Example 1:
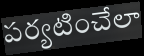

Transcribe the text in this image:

పర్యటించేలా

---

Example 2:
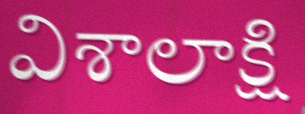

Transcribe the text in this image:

విశాలాక్షి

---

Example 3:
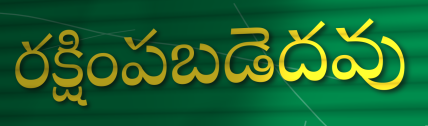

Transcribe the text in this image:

రక్షింపబడెదవు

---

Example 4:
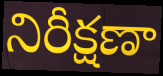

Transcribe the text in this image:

నిరీక్షణా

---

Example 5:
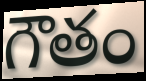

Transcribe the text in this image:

గౌతం